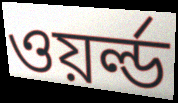
ওয়র্ল্ড